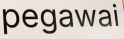
pegawai